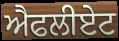
ਐਫਲੀਏਟ